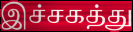
இச்சகத்து